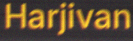
Harjivan